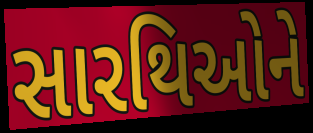
સારથિઓને